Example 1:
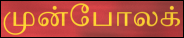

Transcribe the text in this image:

முன்போலக்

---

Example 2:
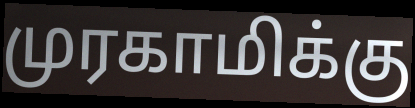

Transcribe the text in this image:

முரகாமிக்கு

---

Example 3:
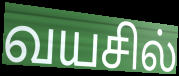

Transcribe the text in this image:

வயசில்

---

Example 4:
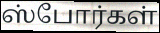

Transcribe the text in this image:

ஸ்போர்கள்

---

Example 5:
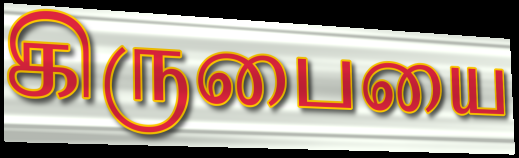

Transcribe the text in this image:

கிருபையை